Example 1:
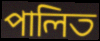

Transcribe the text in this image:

পালিত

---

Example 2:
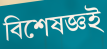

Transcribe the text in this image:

বিশেষজ্ঞই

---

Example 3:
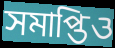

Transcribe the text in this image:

সমাপ্তিও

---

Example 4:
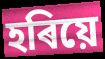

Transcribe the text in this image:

হৰিয়ে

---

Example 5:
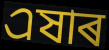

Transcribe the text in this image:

এষাৰ